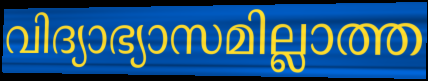
വിദ്യാഭ്യാസമില്ലാത്ത